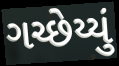
ગચ્છેય્યું